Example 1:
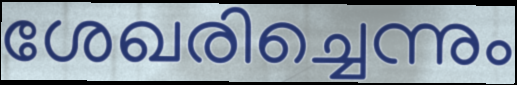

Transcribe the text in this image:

ശേഖരിച്ചെന്നും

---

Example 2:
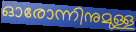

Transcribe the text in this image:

ഓരോന്നിനുമുള്ള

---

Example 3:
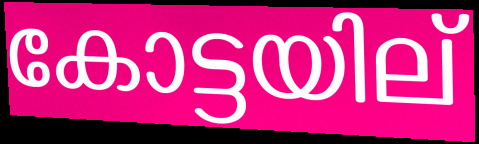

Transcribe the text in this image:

കോട്ടയില്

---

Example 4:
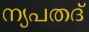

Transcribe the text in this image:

ന്യപതദ്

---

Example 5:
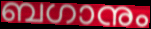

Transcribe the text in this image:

ബഗാനും